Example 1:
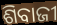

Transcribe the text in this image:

ଶିବାଜୀ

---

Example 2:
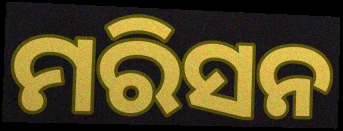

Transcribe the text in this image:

ମରିସନ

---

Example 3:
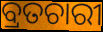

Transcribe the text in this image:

ବ୍ରତଚାରୀ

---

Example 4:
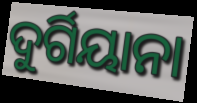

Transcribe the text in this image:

ଦୁର୍ଗିୟାନା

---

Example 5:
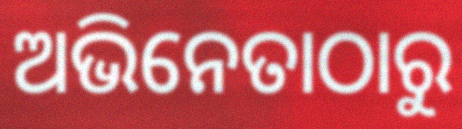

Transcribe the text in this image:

ଅଭିନେତାଠାରୁ